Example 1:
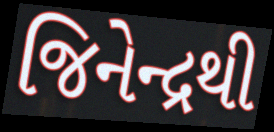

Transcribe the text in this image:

જિનેન્દ્રથી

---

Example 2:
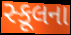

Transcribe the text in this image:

સ્કૂલના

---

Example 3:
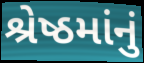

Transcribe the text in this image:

શ્રેષ્ઠમાંનું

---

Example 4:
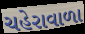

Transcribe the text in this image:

ચહેરાવાળા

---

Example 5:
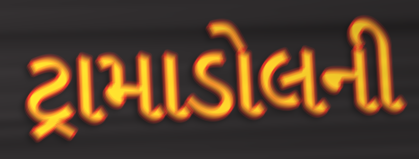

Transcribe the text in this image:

ટ્રામાડોલની